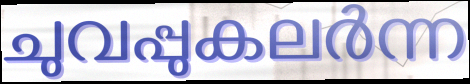
ചുവപ്പുകലർന്ന